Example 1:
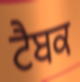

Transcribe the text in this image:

ਟੈਬਕ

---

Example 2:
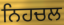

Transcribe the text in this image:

ਨਿਹਚਲ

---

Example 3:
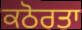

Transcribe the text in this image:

ਕਠੋਰਤਾ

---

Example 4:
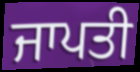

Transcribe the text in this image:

ਜਾਪਤੀ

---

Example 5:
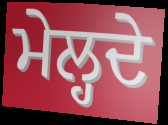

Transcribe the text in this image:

ਮੇਲ੍ਹਦੇ